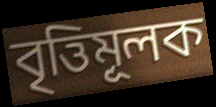
বৃত্তিমূলক